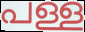
പള്ള